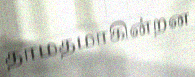
தாமதமாகின்றன